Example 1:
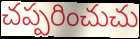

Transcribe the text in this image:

చప్పరించుచు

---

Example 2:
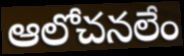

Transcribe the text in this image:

ఆలోచనలేం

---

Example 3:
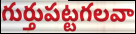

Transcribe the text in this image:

గుర్తుపట్టగలవా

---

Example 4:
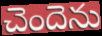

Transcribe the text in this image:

చెందెను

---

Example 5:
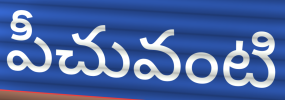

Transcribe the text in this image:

పీచువంటి